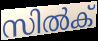
സിൽക്